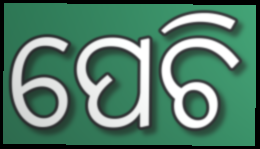
ପେଚି